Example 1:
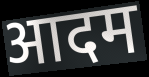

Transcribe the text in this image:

आदम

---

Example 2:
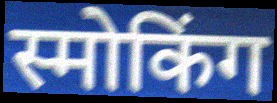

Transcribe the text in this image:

स्‍मोकिंग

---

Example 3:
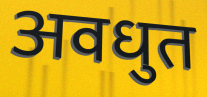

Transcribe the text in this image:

अवधुत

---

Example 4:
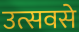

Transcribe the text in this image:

उत्सवसे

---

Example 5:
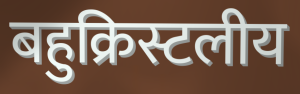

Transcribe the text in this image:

बहुक्रिस्टलीय